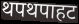
थपथपाहट